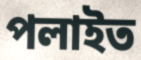
পলাইত